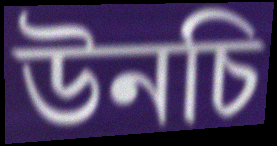
উনচি